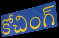
కోచింగ్